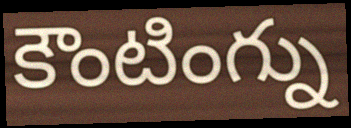
కౌంటింగ్ను